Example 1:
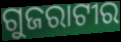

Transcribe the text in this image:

ଗୁଜରାଟୀର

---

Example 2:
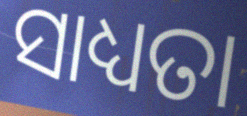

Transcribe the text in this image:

ସାଧ୍ୟତା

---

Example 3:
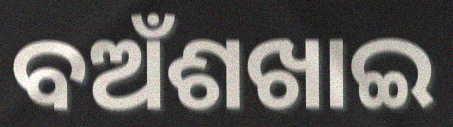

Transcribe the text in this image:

ବଅଁଶଖାଇ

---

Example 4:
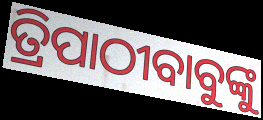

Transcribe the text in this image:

ତ୍ରିପାଠୀବାବୁଙ୍କୁ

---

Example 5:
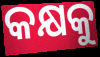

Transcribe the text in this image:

କକ୍ଷକୁ